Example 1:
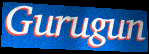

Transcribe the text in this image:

Gurugun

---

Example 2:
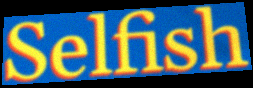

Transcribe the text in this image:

Selfish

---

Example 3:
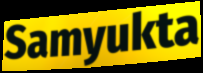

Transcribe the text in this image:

Samyukta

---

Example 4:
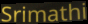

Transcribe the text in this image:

Srimathi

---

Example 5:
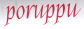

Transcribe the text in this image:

poruppu